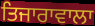
ਤਿਜਾਰਾਵਾਲਾ